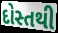
દોસ્તથી